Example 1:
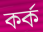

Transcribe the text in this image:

কর্ক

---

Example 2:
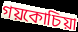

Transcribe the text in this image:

গয়কোচিয়া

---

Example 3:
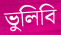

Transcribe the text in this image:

ভুলিবি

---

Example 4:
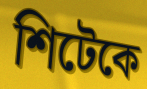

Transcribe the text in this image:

শিটেকে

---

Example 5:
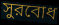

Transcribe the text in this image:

সুরবোধ